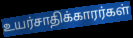
உயர்சாதிக்காரர்கள்